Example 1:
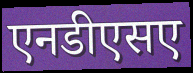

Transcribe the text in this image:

एनडीएसए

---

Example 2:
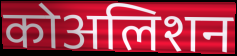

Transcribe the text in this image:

कोअलिशन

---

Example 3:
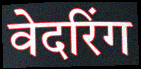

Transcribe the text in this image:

वेदरिंग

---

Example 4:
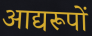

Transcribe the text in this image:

आद्यरूपों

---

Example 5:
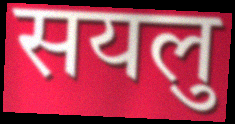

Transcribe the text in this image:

सयलु